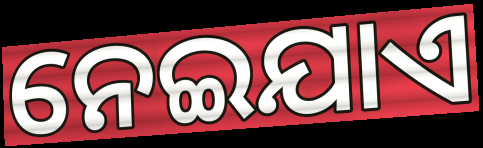
ନେଇଯାଏ